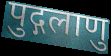
पुद्गलाणु